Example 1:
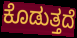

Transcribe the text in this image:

ಕೊಡುತ್ತದೆ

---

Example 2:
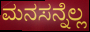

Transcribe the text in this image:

ಮನಸನ್ನೆಲ್ಲ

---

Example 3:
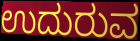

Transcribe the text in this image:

ಉದುರುವ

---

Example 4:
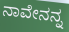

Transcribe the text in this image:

ನಾವೇನನ್ನ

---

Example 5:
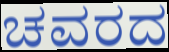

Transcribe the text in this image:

ಚವರದ